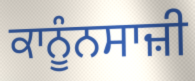
ਕਾਨੂੰਨਸਾਜ਼ੀ